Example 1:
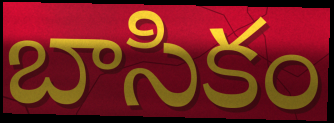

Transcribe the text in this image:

బాసికం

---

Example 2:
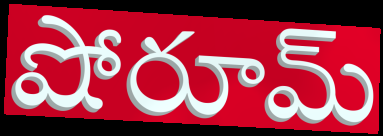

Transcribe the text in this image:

షోరూమ్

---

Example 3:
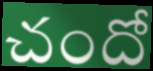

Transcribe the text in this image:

చందో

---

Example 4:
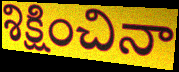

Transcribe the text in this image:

శిక్షించినా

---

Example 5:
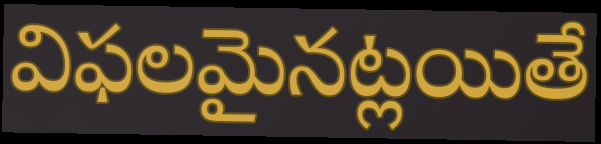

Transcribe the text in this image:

విఫలమైనట్లయితే